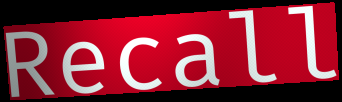
Recall